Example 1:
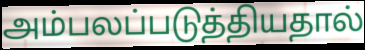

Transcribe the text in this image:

அம்பலப்படுத்தியதால்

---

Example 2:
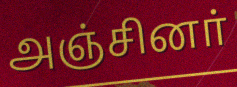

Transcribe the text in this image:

அஞ்சினர்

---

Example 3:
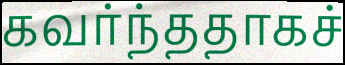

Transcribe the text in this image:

கவர்ந்ததாகச்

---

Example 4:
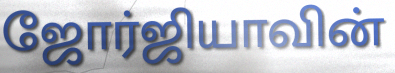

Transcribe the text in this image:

ஜோர்ஜியாவின்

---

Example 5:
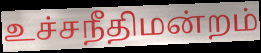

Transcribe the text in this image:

உச்சநீதிமன்றம்